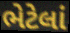
ભેટેલાં